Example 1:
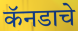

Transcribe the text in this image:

कॅनडाचे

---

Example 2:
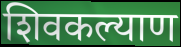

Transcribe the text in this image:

शिवकल्याण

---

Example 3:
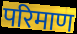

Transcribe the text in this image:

परिमाण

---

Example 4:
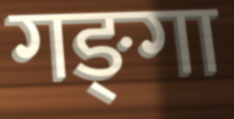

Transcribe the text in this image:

गङ्‍गा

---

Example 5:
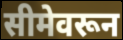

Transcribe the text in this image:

सीमेवरून